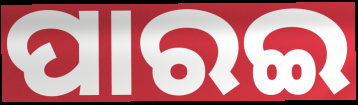
ପାରଇ